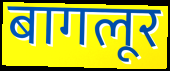
बागलूर